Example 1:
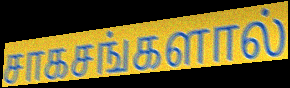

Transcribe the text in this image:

சாகசங்களால்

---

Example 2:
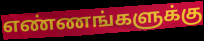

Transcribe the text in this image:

எண்ணங்களுக்கு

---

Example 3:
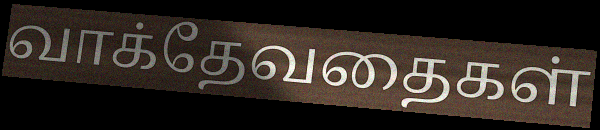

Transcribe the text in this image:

வாக்தேவதைகள்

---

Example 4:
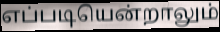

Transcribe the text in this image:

எப்படியென்றாலும்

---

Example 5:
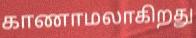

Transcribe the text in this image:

காணாமலாகிறது